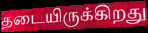
தடையிருக்கிறது